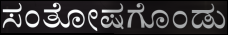
ಸಂತೋಷಗೊಂಡು